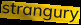
strangury